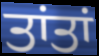
ਤਾਂਤਾਂ